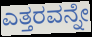
ಎತ್ತರವನ್ನೇ